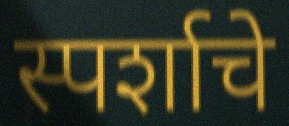
स्पर्शाचे